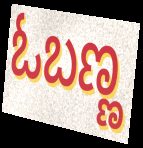
ಓಬಣ್ಣ